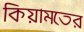
কিয়ামতের